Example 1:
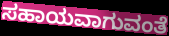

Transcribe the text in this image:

ಸಹಾಯವಾಗುವಂತೆ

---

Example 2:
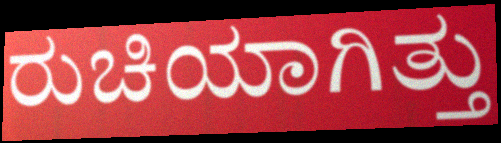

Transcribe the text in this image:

ರುಚಿಯಾಗಿತ್ತು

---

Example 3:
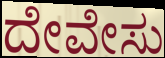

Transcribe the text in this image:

ದೇವೇಸು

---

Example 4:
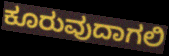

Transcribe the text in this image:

ಕೂರುವುದಾಗಲಿ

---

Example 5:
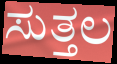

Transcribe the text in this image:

ಸುತ್ತಲ